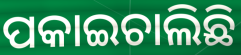
ପକାଇଚାଲିଛି